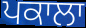
ਪਕਾਲਾ